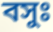
বসুঃ